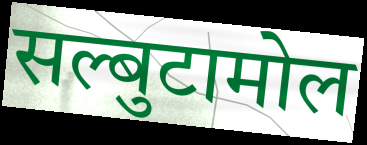
सल्बुटामोल